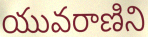
యువరాణిని